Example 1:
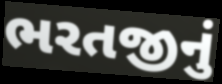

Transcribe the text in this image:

ભરતજીનું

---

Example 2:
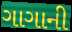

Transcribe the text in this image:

ગાગાની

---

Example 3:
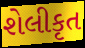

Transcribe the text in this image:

શેલીકૃત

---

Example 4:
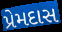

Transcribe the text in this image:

પ્રેમદાસ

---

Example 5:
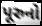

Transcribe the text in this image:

પૂરુનો